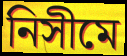
নিসীমে